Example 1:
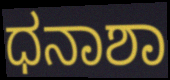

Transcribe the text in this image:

ಧನಾಶಾ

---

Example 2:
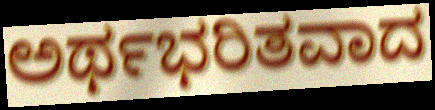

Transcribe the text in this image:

ಅರ್ಥಭರಿತವಾದ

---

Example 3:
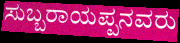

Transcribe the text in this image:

ಸುಬ್ಬರಾಯಪ್ಪನವರು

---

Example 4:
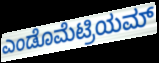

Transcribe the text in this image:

ಎಂಡೊಮೆಟ್ರಿಯಮ್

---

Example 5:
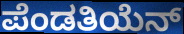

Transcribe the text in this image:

ಪೆಂಡತಿಯೆನ್